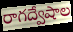
రాగద్వేషాల